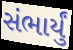
સંભાર્યું